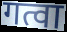
गत्वा